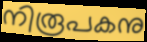
നിരൂപകനു